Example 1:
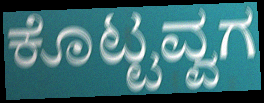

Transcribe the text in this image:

ಕೊಟ್ಟವ್ವಗ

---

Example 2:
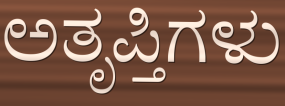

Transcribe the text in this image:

ಅತೃಪ್ತಿಗಳು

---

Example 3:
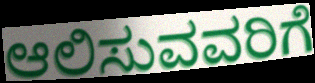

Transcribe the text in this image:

ಆಲಿಸುವವರಿಗೆ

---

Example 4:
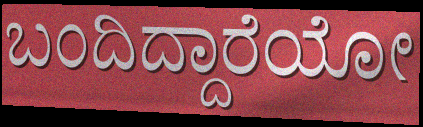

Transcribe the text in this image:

ಬಂದಿದ್ದಾರೆಯೋ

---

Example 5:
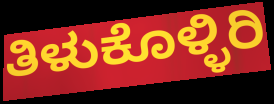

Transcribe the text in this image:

ತಿಳುಕೊಳ್ಳಿರಿ